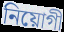
নিয়োগী